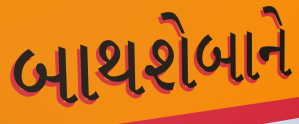
બાથશેબાને